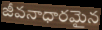
జీవనాధారమైన